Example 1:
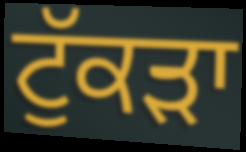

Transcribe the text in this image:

ਟੁੱਕੜਾ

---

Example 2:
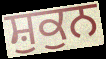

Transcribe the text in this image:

ਸ਼ੁਕੁਨ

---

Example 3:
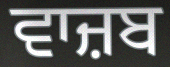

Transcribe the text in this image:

ਵਾਜ਼ਬ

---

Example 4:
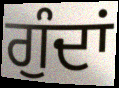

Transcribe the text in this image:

ਗੁੰਦਾਂ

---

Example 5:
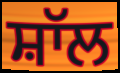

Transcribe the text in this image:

ਸ਼ਾੱਲ